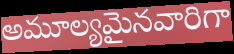
అమూల్యమైనవారిగా